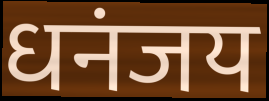
धनंजय